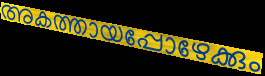
അകത്തായപ്പോഴേക്കും